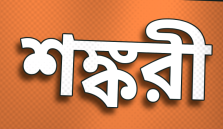
শঙ্করী